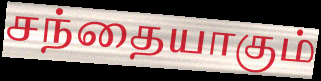
சந்தையாகும்